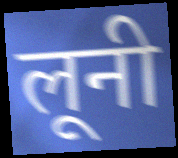
लूनी